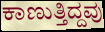
ಕಾಣುತ್ತಿದ್ದವು